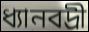
ধ্যানবদ্রী